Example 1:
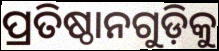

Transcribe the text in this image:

ପ୍ରତିଷ୍ଠାନଗୁଡ଼ିକୁ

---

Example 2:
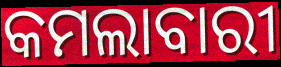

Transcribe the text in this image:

କମଲାବାରୀ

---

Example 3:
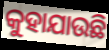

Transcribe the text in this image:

କୁହାଯାଉଛି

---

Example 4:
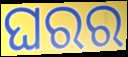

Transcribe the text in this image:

ଘରର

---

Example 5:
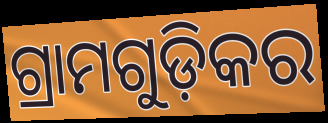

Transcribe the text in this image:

ଗ୍ରାମଗୁଡ଼ିକର